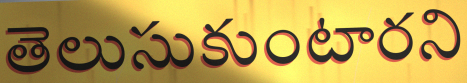
తెలుసుకుంటారని